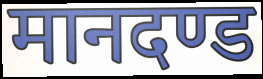
मानदण्ड